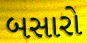
બસારો